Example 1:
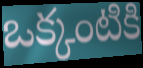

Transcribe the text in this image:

ఒక్కంటికి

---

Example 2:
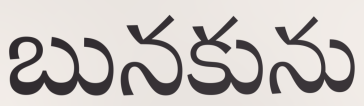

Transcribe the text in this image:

బునకును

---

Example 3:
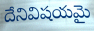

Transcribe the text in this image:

దేనివిషయమై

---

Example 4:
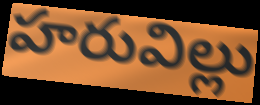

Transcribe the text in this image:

హరువిల్లు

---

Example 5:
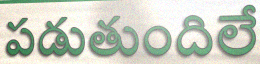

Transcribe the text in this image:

పడుతుందిలే